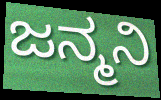
ಜನ್ಮನಿ